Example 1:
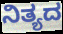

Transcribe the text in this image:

ನಿತ್ಯದ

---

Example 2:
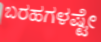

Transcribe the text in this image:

ಬರಹಗಳಷ್ಟೇ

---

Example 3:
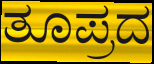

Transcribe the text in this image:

ತೂಪ್ರದ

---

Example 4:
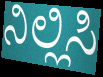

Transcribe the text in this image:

ನಿಲ್ಲಿಸಿ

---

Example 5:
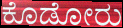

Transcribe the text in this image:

ಕೊಡೋರು